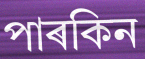
পাৰকিন